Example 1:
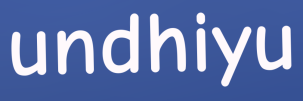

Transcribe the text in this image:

undhiyu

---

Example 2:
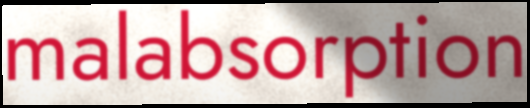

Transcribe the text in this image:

malabsorption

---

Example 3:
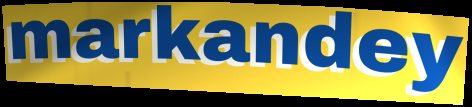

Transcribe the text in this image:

markandey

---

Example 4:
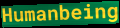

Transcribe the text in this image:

Humanbeing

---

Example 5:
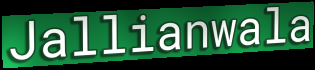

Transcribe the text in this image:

Jallianwala